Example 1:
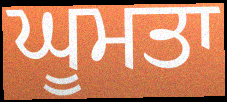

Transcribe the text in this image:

ਘੂਮਤਾ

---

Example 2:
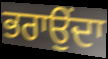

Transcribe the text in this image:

ਭਰਾਉਂਦਾ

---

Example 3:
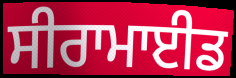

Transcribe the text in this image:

ਸੀਰਾਮਾਈਡ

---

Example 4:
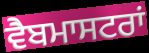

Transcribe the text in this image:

ਵੈਬਮਾਸਟਰਾਂ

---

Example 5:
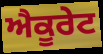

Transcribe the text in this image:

ਐਕੂਰੇਟ